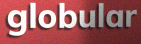
globular